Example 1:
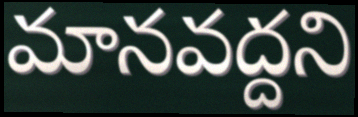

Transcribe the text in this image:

మానవద్దని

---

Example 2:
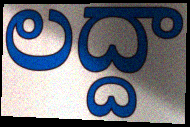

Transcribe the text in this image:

లద్దా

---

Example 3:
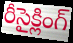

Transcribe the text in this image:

రీసైక్లింగ్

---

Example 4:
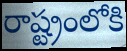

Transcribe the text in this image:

రాష్ట్రంలోకి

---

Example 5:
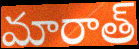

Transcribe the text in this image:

మారాత్